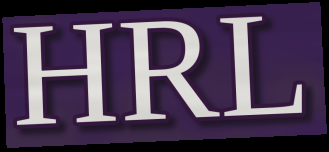
HRL